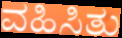
ವಹಿಸಿತು